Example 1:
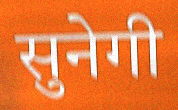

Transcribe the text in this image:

सुनेगी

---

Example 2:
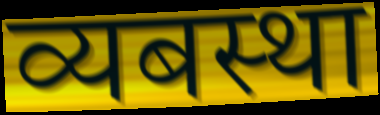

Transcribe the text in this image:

व्यबस्था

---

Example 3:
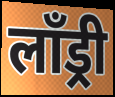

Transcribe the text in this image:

लॉंड्री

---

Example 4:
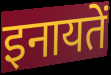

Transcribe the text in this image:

इनायतें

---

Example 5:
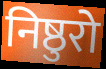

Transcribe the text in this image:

निष्ठुरो